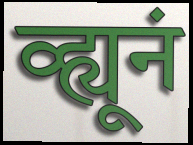
व्ह्यूनं